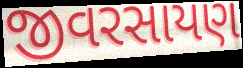
જીવરસાયણ